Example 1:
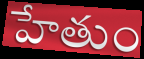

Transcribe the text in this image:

హేతుం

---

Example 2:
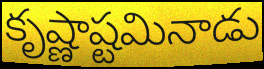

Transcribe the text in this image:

కృష్ణాష్టమినాడు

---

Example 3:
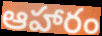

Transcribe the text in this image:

ఆహారం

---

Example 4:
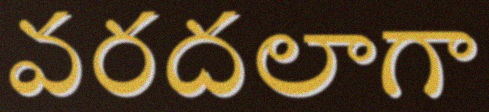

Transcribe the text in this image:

వరదలాగా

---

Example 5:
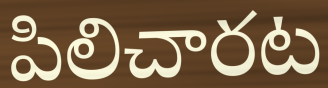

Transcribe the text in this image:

పిలిచారట